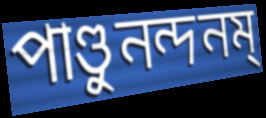
পাণ্ডুনন্দনম্